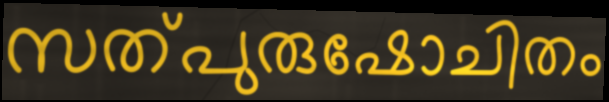
സത്പുരുഷോചിതം